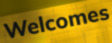
Welcomes